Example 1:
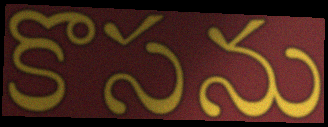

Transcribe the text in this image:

కొసను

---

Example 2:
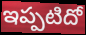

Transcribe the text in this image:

ఇప్పటిదో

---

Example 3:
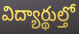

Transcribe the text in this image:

విద్యార్థుల్తో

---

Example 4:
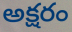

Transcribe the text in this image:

అక్షరం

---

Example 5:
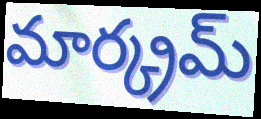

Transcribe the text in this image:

మార్క్రమ్